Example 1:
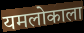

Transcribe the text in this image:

यमलोकाला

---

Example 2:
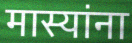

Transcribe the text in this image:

मास्यांना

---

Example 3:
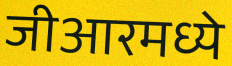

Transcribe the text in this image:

जीआरमध्ये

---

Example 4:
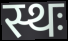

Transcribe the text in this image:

स्थः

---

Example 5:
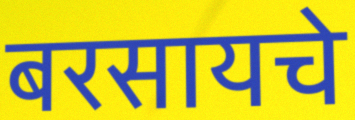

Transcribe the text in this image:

बरसायचे